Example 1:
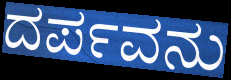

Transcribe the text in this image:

ದರ್ಪವನು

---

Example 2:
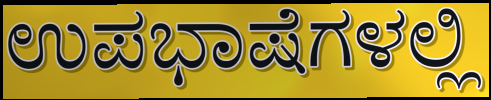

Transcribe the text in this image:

ಉಪಭಾಷೆಗಳಲ್ಲಿ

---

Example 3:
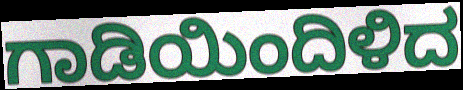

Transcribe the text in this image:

ಗಾಡಿಯಿಂದಿಳಿದ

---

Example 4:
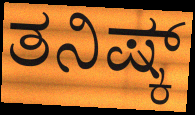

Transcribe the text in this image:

ತನಿಷ್ಕ್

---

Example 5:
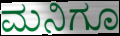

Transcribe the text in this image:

ಮನಿಗೂ